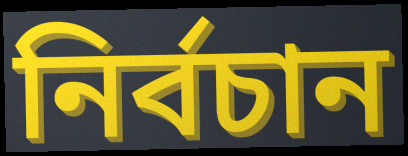
নির্বচান